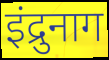
इंद्रुनाग